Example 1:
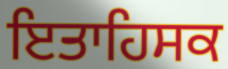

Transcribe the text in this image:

ਇਤਾਹਿਸਕ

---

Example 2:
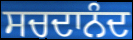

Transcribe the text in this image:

ਸਚਦਾਨੰਦ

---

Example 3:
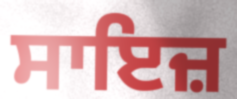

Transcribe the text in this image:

ਸਾਇਜ਼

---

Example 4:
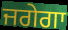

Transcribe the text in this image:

ਜਗੇਗਾ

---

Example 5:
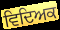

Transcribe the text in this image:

ਵਿਦਿਅਕ